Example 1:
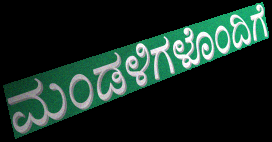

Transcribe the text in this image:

ಮಂಡಳಿಗಳೊಂದಿಗೆ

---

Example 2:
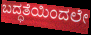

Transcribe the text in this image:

ಬದ್ಧತೆಯಿಂದಲೇ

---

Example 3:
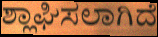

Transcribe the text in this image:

ಶ್ಲಾಘಿಸಲಾಗಿದೆ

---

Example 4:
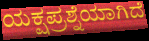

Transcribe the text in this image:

ಯಕ್ಷಪ್ರಶ್ನೆಯಾಗಿದೆ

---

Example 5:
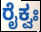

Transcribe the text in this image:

ರೈಕ್ವಃ